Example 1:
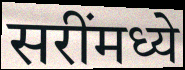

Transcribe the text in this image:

सरींमध्ये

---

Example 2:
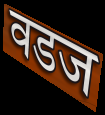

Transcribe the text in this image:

वडज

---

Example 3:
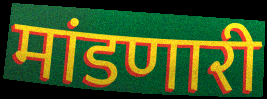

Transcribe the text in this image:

मांडणारी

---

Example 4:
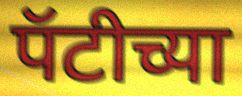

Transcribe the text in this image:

पॅटीच्या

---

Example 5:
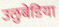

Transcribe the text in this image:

उलुबेडिया